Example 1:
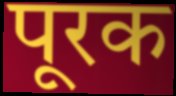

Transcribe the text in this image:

पूरक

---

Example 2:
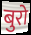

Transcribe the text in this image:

बुरो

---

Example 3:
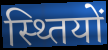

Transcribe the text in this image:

स्थ्तियों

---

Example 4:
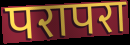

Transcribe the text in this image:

परापरा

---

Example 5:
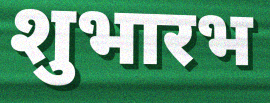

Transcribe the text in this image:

शुभारभ